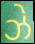
ઝે